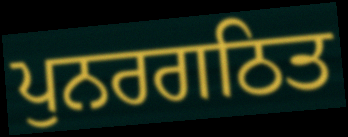
ਪੁਨਰਗਠਿਤ